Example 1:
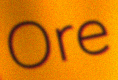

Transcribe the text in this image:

Ore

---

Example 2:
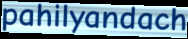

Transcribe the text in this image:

pahilyandach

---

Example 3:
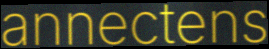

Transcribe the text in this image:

annectens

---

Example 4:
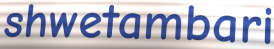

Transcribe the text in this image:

shwetambari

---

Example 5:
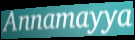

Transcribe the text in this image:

Annamayya